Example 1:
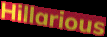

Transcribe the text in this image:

Hillarious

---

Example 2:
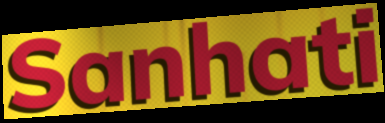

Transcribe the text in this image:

Sanhati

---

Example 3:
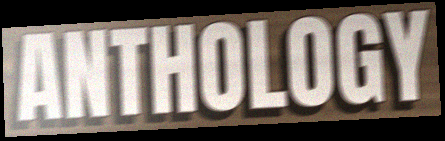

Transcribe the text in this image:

ANTHOLOGY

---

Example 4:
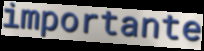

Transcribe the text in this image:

importante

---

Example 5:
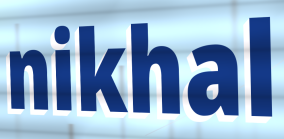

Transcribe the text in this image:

nikhal